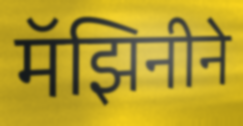
मॅझिनीने